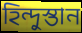
হিন্দুস্তান